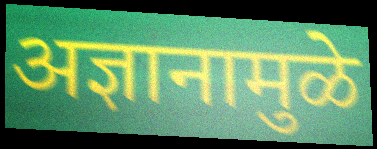
अज्ञानामुळे